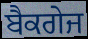
ਬੈਕਗੇਜ